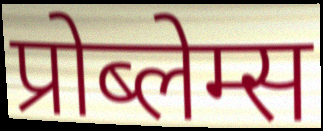
प्रोब्लेम्स